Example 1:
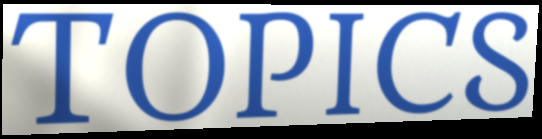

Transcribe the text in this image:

TOPICS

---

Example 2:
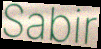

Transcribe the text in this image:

Sabir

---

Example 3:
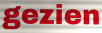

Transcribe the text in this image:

gezien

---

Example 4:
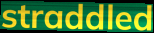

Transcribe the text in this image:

straddled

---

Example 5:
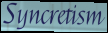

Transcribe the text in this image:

Syncretism